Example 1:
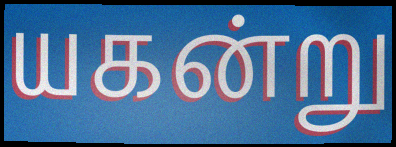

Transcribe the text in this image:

யகன்று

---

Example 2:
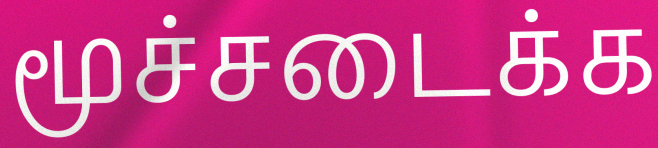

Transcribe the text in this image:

மூச்சடைக்க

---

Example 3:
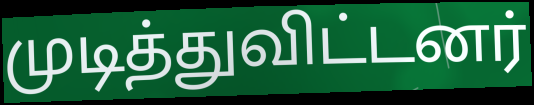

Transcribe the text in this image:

முடித்துவிட்டனர்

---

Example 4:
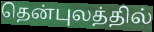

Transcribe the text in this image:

தென்புலத்தில்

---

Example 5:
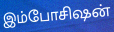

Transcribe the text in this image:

இம்போசிஷன்